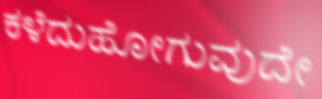
ಕಳೆದುಹೋಗುವುದೇ